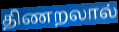
திணறலால்